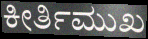
ಕೀರ್ತಿಮುಖ